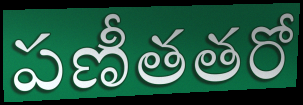
పణీతతరో